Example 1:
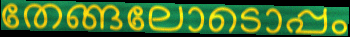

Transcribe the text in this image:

തേങ്ങലോടൊപ്പം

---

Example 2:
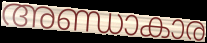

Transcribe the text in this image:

അണ്ഡാകാര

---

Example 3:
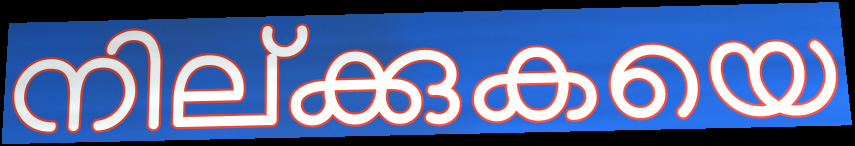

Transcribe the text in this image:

നില്ക്കുകയെ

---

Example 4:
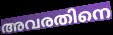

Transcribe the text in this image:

അവരതിനെ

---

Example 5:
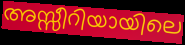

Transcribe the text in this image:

അസ്സീറിയായിലെ